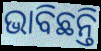
ଭାବିଛନ୍ତି